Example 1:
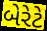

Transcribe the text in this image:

બેરેટે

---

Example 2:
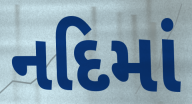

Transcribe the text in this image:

નદિમાં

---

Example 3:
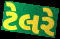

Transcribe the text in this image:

ટેલરે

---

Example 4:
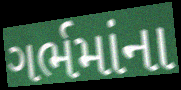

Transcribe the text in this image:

ગર્ભમાંના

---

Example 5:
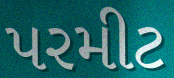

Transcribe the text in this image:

પરમીટ